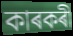
কাৰকৰী